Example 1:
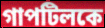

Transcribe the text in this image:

গাপটিলকে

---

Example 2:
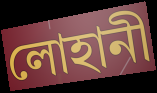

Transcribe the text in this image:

লোহানী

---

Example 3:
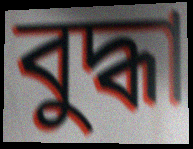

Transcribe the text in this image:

বুদ্ধা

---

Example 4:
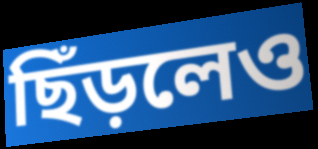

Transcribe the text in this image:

ছিঁড়লেও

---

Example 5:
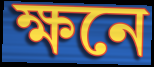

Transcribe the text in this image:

ক্ষনে